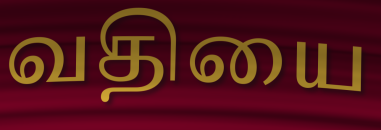
வதியை